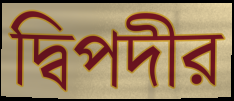
দ্বিপদীর